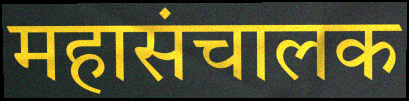
महासंचालक